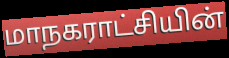
மாநகராட்சியின்